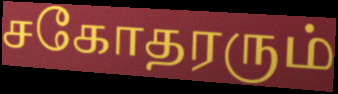
சகோதரரும்